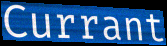
Currant